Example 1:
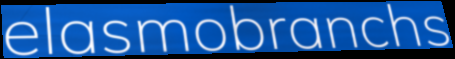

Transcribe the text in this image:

elasmobranchs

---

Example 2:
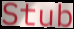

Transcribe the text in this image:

Stub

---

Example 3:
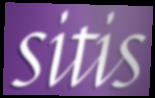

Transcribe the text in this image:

sitis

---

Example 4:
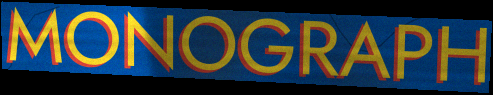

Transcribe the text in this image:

MONOGRAPH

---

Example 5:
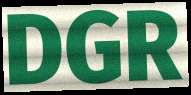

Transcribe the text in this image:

DGR